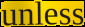
unless